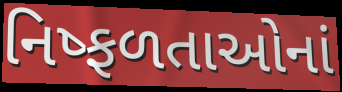
નિષ્ફળતાઓનાં